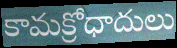
కామక్రోధాదులు